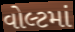
વોલ્ટમાં